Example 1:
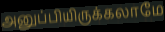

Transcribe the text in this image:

அனுப்பியிருக்கலாமே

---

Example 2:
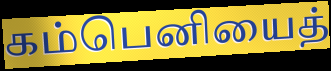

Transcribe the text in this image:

கம்பெனியைத்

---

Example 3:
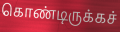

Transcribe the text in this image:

கொண்டிருக்கச்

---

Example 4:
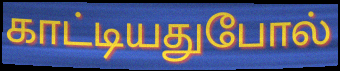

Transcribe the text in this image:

காட்டியதுபோல்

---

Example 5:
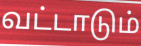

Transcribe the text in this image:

வட்டாடும்